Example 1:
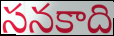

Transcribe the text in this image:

సనకాది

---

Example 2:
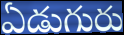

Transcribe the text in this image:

ఏడుగురు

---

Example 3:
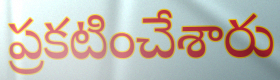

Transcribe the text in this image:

ప్రకటించేశారు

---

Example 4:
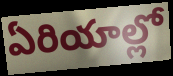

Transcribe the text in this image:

ఏరియాల్లో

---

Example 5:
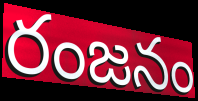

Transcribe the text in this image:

రంజనం